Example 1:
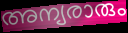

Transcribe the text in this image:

അന്യരാരും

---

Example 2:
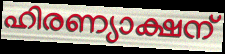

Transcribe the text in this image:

ഹിരണ്യാക്ഷന്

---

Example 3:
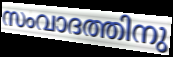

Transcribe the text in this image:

സംവാദത്തിനു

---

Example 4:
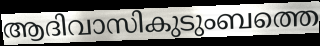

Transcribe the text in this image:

ആദിവാസികുടുംബത്തെ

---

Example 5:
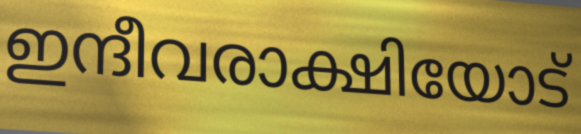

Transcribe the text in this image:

ഇന്ദീവരാക്ഷിയോട്